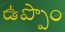
ఉప్పొం